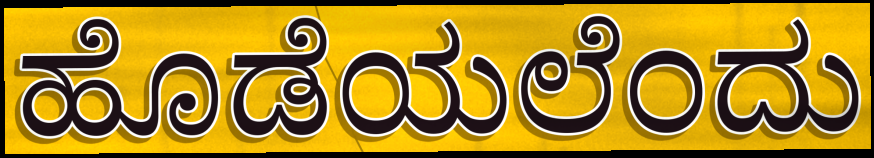
ಹೊಡೆಯಲೆಂದು